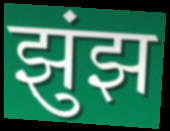
झुंझ